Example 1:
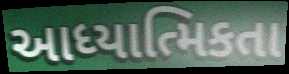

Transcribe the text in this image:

આધ્યાત્મિકતા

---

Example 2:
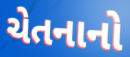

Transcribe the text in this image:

ચેતનાનો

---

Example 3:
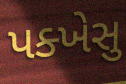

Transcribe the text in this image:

પક્ખેસુ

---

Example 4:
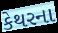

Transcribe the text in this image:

કેથરના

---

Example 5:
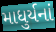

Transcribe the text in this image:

માધુર્યનાં